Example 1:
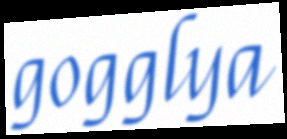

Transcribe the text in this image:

gogglya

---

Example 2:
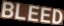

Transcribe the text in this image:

BLEED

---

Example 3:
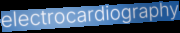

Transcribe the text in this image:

electrocardiography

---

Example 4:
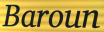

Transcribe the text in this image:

Baroun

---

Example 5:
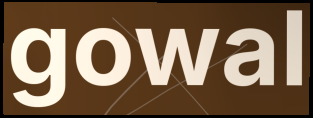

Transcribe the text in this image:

gowal